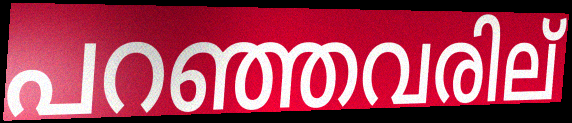
പറഞ്ഞവരില്